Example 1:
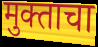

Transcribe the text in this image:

मुक्ताचा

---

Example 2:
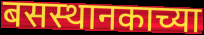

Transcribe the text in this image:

बसस्थानकाच्या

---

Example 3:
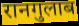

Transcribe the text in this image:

रानगुलाब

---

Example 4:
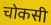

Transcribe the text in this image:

चोकसी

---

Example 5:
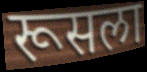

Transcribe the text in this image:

रूसला